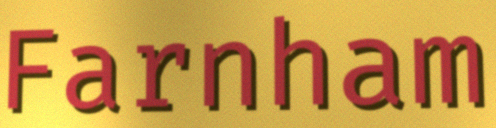
Farnham